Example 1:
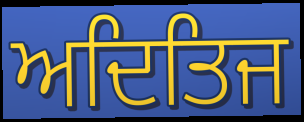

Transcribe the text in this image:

ਅਦਿਤਿਜ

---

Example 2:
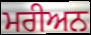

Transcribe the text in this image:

ਮਰੀਅਨ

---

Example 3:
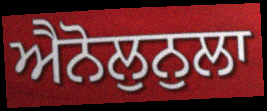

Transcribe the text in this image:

ਐਨੋਲੁਨੁਲਾ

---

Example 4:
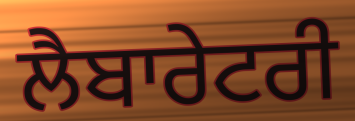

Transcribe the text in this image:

ਲੈਬਾਰੇਟਰੀ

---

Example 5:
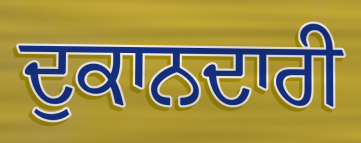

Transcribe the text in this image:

ਦੁਕਾਨਦਾਰੀ